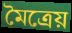
মৈত্রেয়